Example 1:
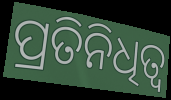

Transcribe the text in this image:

ପ୍ରତିନିଧିତ୍ବ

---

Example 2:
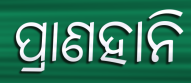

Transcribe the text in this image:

ପ୍ରାଣହାନି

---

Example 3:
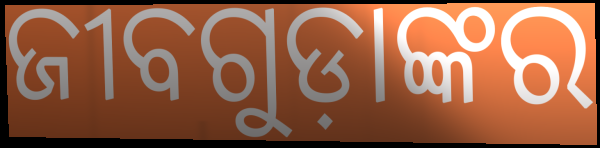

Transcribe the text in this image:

ଜୀବଗୁଡ଼ାଙ୍କର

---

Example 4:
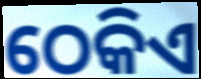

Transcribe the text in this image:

ଠେକିଏ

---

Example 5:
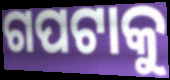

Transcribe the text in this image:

ଗପଟାକୁ